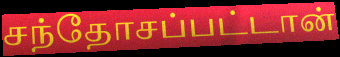
சந்தோசப்பட்டான்